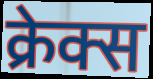
क्रेक्स